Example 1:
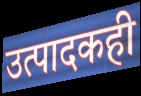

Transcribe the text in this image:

उत्पादकही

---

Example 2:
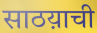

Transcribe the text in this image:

साठय़ाची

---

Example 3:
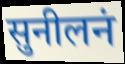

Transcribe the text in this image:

सुनीलनं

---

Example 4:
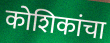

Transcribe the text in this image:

कोशिकांचा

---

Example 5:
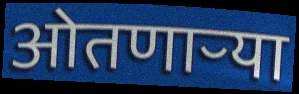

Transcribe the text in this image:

ओतणाऱ्या